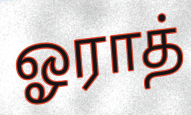
ஓராத்